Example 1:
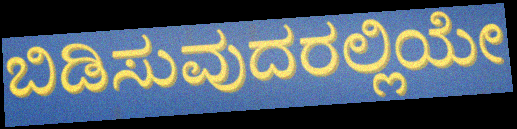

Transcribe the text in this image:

ಬಿಡಿಸುವುದರಲ್ಲಿಯೇ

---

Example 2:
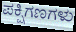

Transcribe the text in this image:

ಪಕ್ಷಿಗಣಗಳು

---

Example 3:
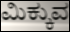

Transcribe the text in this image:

ಮಿಕ್ಕುವ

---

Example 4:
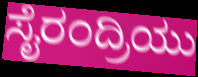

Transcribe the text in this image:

ಸೈರಂದ್ರಿಯು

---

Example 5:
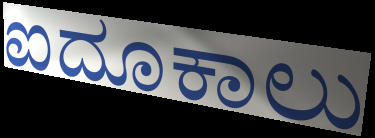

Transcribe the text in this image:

ಐದೂಕಾಲು